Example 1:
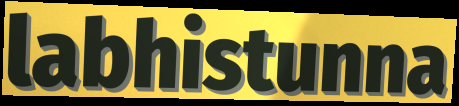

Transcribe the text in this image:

labhistunna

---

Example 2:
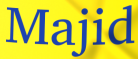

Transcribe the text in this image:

Majid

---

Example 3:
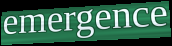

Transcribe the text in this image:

emergence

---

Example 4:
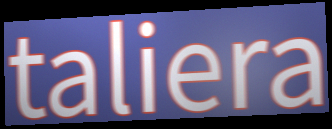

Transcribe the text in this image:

taliera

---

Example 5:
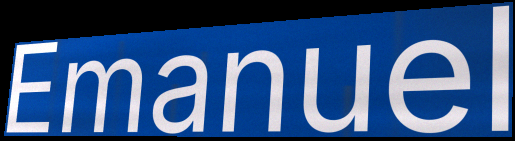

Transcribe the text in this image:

Emanuel